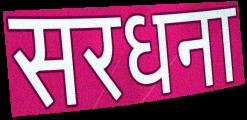
सरधना